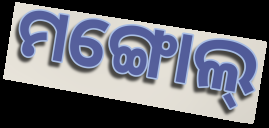
ମଙ୍ଗୋଲ୍